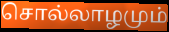
சொல்லாழமும்